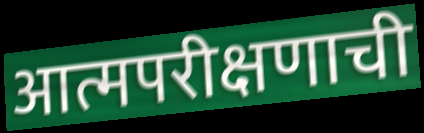
आत्मपरीक्षणाची